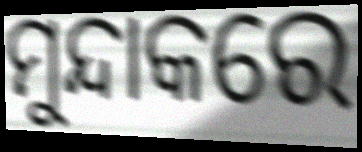
ମୁନ୍ଦାକରେ